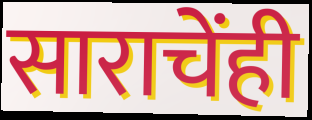
साराचेंही